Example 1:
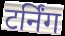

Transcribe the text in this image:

टर्निंग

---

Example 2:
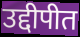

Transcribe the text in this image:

उद्दीपीत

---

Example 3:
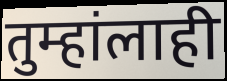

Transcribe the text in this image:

तुम्हांलाही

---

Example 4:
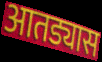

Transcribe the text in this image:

आतड्यास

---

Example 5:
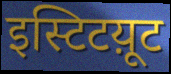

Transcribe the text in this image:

इस्टिटय़ूट